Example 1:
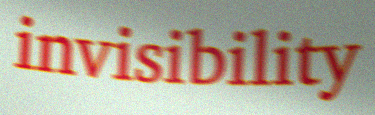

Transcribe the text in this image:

invisibility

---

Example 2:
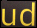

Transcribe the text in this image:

ud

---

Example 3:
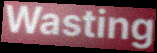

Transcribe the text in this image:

Wasting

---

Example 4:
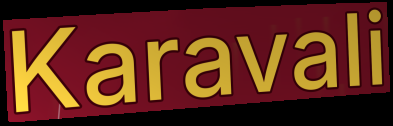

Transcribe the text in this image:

Karavali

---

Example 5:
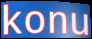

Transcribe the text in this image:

konu